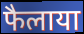
फैलाया